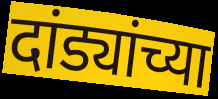
दांड्यांच्या